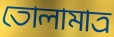
তোলামাত্র